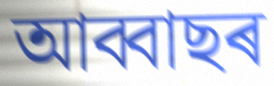
আব্বাছৰ